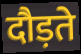
दौड़ते